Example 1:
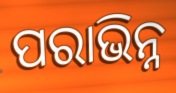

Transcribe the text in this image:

ପରାଭିନ୍ନ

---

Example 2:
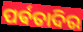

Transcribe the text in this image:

ପର୍ଵତାଦିର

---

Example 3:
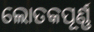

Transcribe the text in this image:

ଲୋତକପୂର୍ଣ୍ଣ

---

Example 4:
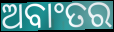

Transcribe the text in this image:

ଅବାଂତର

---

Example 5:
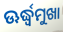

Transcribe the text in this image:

ଊର୍ଦ୍ଧ୍ବମୁଖା